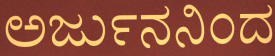
ಅರ್ಜುನನಿಂದ